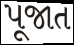
પૂજાત